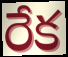
రేక